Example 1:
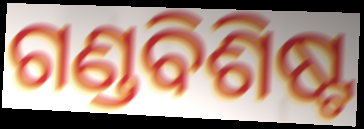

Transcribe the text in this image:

ଗଣ୍ଡବିଶିଷ୍ଟ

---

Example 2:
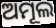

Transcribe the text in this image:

ଅମୂଲ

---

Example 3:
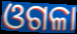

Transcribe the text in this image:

ଓଗଳା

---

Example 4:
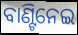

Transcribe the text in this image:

ବାଣ୍ଟିନେଇ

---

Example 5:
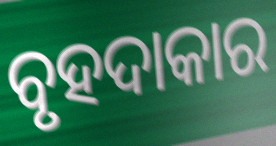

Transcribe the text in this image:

ବୃହଦାକାର